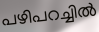
പഴിപറച്ചിൽ